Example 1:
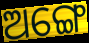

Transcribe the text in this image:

ଅଙ୍ଗେ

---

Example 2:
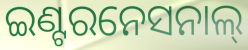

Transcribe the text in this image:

ଇଣ୍ଟରନେସନାଲ୍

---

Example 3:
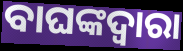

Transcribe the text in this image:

ବାଘଙ୍କଦ୍ୱାରା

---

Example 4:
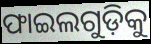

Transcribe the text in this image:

ଫାଇଲଗୁଡ଼ିକୁ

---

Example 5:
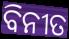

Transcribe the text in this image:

ବିନୀତ